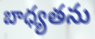
బాధ్యతను